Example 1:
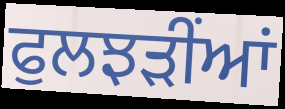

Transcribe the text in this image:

ਫੁਲਝੜੀਂਆਂ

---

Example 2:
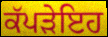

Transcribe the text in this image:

ਕੱਪੜੇਇਹ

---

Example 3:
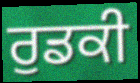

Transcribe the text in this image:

ਰੁਡਕੀ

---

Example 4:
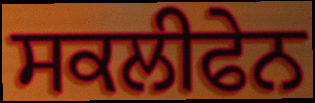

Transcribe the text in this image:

ਸਕਲੀਫੇਨ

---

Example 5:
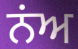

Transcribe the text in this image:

ਨਂਅ